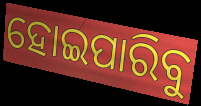
ହୋଇପାରିବୁ